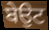
ਬੇਉਟ